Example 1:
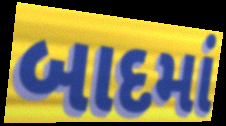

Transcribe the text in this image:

બાદમાં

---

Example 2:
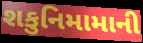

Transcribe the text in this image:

શકુનિમામાની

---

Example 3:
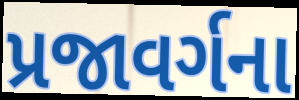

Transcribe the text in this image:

પ્રજાવર્ગના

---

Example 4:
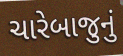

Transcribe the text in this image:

ચારેબાજુનું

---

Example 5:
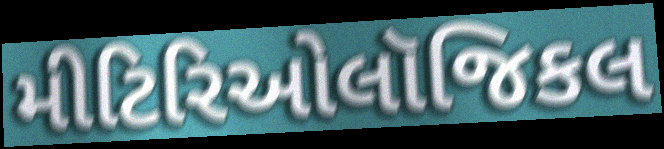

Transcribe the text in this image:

મીટિરિઓલૉજિકલ